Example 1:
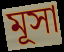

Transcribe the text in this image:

মূসা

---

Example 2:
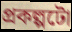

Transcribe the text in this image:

প্ৰকল্পটো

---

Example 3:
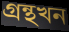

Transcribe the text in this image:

গ্ৰন্থখন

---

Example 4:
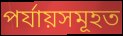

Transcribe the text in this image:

পৰ্যায়সমূহত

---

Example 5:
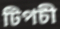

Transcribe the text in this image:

টিপচী